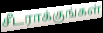
சீடராக்குங்கள்